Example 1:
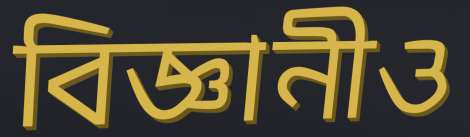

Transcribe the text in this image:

বিজ্ঞানীও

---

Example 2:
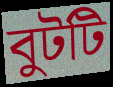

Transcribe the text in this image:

বুটটি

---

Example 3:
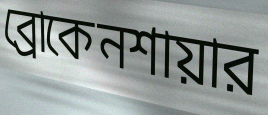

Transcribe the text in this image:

ব্রোকেনশায়ার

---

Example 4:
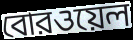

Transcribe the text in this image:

বোরওয়েল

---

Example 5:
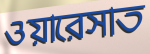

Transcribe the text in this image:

ওয়ারেসাত